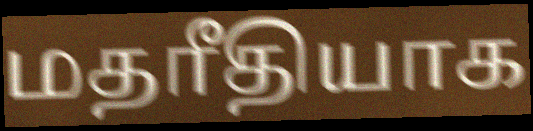
மதரீதியாக